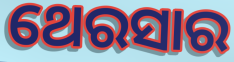
ଥେରସାର